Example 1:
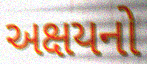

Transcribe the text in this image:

અક્ષયનો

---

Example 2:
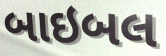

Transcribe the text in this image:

બાઇબલ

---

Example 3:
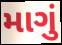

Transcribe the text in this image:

માગું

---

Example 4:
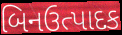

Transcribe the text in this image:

બિનઉત્પાદક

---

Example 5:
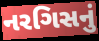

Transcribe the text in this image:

નરગિસનું